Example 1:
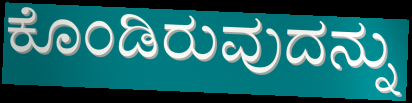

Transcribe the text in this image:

ಕೊಂಡಿರುವುದನ್ನು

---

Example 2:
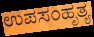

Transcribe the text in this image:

ಉಪಸಂಹೃತ್ಯ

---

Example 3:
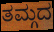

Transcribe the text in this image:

ತಮ್ಗದ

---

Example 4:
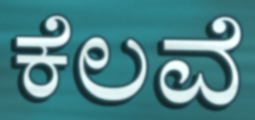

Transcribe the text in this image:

ಕೆಲವೆ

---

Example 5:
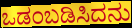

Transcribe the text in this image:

ಒಡಂಬಡಿಸಿದನು